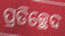
ପ୍ରତିଚ୍ଛେଦ